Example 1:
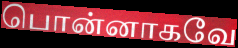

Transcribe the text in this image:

பொன்னாகவே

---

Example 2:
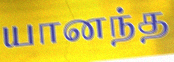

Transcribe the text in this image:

யானந்த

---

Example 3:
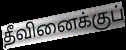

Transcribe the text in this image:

தீவினைக்குப்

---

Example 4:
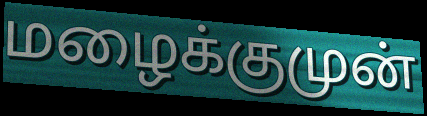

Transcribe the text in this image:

மழைக்குமுன்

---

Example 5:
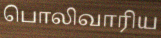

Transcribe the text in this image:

பொலிவாரிய